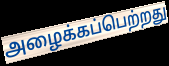
அழைக்கப்பெற்றது